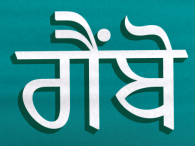
ਗੈਂਬੋ